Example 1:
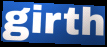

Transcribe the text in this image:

girth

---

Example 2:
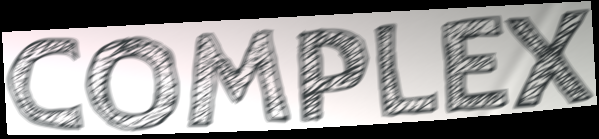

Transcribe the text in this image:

COMPLEX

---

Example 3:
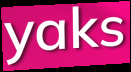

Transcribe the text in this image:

yaks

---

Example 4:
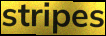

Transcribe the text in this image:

stripes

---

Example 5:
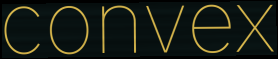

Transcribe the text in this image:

convex